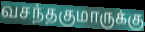
வசந்தகுமாருக்கு